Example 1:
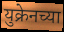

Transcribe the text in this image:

युक्रेनच्या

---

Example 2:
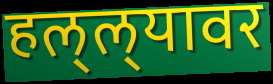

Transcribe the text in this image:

हल्ल्यावर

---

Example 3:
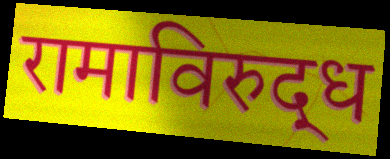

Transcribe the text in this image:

रामाविरुद्ध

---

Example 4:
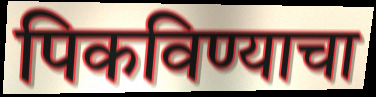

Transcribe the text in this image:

पिकविण्याचा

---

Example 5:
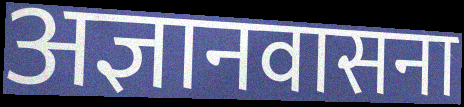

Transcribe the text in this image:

अज्ञानवासना